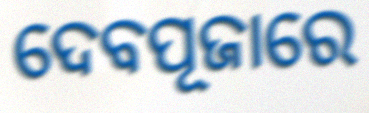
ଦେବପୂଜାରେ